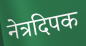
नेत्रदिपक